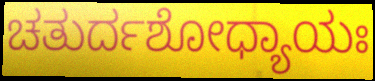
ಚತುರ್ದಶೋಧ್ಯಾಯಃ